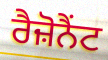
ਰੈਜ਼ੋਨੈਂਟ